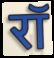
रॉ